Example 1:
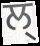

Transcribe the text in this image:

ਲ੍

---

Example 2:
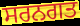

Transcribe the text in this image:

ਸਰਨਗਤ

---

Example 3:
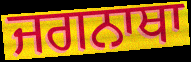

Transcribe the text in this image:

ਜਗਨਾਥਾ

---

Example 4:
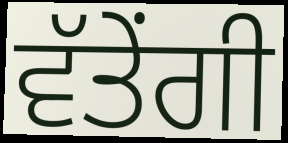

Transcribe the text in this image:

ਵੱਤੇਂਗੀ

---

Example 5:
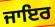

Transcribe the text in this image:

ਜਾਇਰ